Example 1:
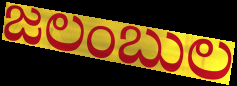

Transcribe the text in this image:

జలంబుల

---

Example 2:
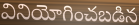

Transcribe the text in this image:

వినియోగించబడిన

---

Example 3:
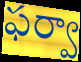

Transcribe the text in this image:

ఫర్వా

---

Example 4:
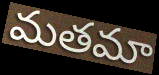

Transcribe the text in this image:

మతమా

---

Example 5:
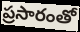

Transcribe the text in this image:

ప్రసారంతో